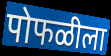
पोफळीला